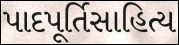
પાદપૂર્તિસાહિત્ય